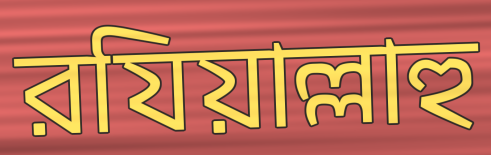
রযিয়াল্লাহু